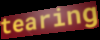
tearing